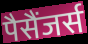
पैसैंजर्स